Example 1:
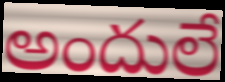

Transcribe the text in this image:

అందులే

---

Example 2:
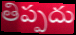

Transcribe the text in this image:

తిప్పదు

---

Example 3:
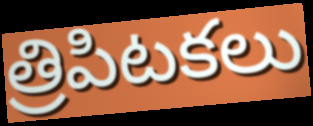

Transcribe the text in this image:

త్రిపిటకలు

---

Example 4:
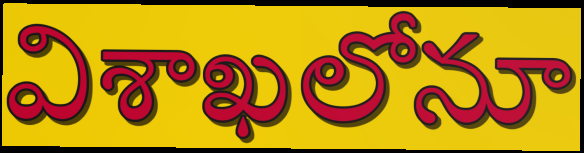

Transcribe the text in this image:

విశాఖలోనూ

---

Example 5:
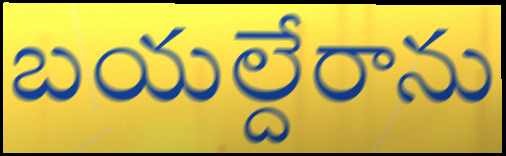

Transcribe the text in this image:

బయల్దేరాను